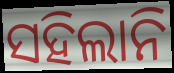
ସହିଲାନି